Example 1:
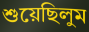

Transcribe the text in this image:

শুয়েছিলুম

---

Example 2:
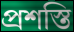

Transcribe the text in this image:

প্রশস্তি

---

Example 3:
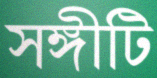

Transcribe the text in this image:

সঙ্গীটি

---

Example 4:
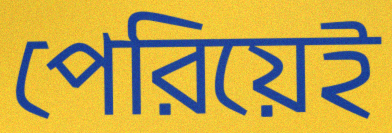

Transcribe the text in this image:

পেরিয়েই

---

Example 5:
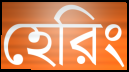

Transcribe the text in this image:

হেরিং